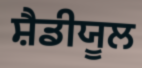
ਸ਼ੈਡੀਯੂਲ